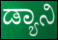
ಡ್ಯಾನಿ